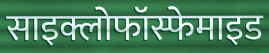
साइक्लोफॉस्फेमाइड